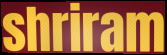
shriram